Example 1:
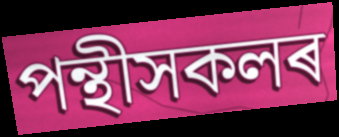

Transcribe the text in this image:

পন্থীসকলৰ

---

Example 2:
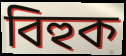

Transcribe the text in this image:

বিহুক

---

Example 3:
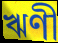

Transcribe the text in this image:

ঋণী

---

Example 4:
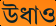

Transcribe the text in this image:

উধাও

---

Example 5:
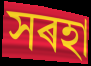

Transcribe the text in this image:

সৰহা